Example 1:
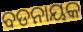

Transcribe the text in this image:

ବଡନାୟକ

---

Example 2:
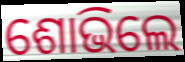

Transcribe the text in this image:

ଶୋଭିଲେ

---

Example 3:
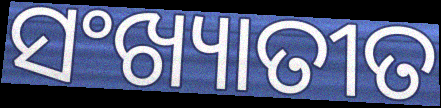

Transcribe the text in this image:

ସଂଖ୍ୟାତୀତ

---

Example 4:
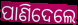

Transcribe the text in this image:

ପାଣିଦେଲେ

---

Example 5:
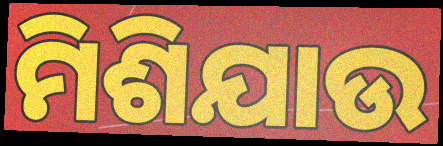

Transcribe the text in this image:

ମିଶିଯାଉ